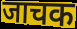
जाचक